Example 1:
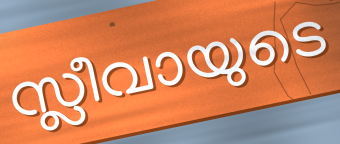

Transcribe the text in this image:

സ്ലീവായുടെ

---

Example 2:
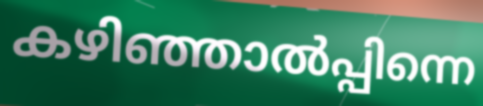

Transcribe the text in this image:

കഴിഞ്ഞാൽപ്പിന്നെ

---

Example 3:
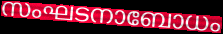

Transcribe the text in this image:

സംഘടനാബോധം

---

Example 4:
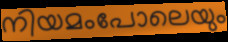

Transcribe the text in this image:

നിയമംപോലെയും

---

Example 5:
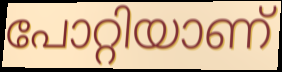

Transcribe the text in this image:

പോറ്റിയാണ്